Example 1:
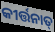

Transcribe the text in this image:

କୀର୍ତ୍ତନାତ୍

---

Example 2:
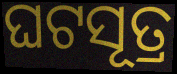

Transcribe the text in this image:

ଘଟସୂତ୍ର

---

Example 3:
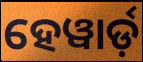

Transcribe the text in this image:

ହେୱାର୍ଡ଼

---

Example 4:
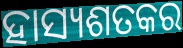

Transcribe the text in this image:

ହାସ୍ୟଶତକର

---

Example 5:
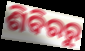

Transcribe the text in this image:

ଶିବିରରୁ